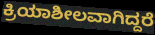
ಕ್ರಿಯಾಶೀಲವಾಗಿದ್ದರೆ